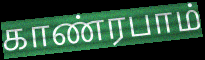
காண்ரபாம்